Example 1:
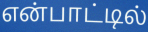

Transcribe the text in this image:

என்பாட்டில்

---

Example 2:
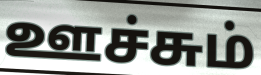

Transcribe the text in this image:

ஊச்சும்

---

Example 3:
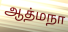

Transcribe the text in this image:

ஆத்மநா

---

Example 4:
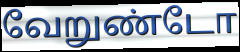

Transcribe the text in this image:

வேறுண்டோ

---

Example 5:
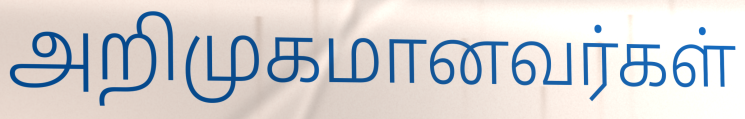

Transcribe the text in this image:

அறிமுகமானவர்கள்